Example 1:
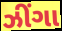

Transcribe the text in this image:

ઝીંગા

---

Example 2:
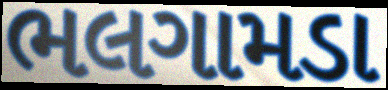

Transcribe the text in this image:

ભલગામડા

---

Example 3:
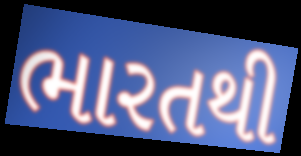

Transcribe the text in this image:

ભારતથી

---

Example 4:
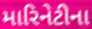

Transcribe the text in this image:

મારિનેટીના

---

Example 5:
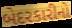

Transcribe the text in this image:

બેદરકારીનો